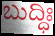
ಬುದ್ಧಿಃ